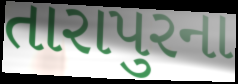
તારાપુરના